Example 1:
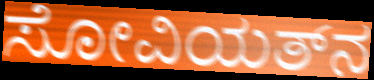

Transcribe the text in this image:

ಸೋವಿಯತ್‌ನ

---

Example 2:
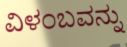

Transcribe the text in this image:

ವಿಳಂಬವನ್ನು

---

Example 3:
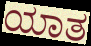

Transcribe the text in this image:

ಯಾತ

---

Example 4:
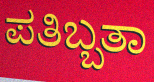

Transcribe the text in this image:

ಪತಿಬ್ಬತಾ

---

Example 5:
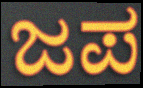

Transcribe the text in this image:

ಜಪ